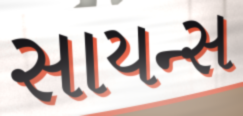
સાયન્સ